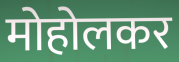
मोहोलकर